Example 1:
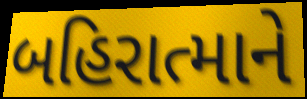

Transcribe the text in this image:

બહિરાત્માને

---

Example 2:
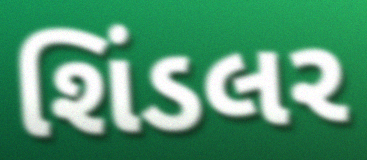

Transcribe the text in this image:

શિંડલર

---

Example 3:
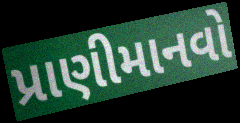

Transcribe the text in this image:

પ્રાણીમાનવો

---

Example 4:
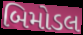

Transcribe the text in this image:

બિમોડલ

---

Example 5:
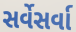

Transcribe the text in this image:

સર્વેસર્વા